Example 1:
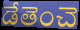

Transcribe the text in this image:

డేతెంచె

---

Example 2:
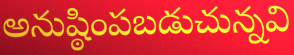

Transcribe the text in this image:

అనుష్ఠింపబడుచున్నవి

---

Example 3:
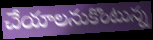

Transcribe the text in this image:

చేయాలనుకొంటున్న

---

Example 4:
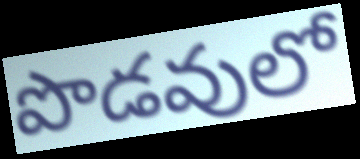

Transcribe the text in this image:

పొడవులో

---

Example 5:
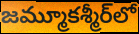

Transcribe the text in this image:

జమ్మూకశ్మీర్‌లో